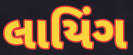
લાયિંગ